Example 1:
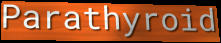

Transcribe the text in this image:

Parathyroid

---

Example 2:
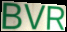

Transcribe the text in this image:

BVR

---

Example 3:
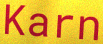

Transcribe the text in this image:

Karn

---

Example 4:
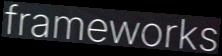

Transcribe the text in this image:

frameworks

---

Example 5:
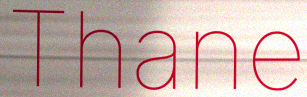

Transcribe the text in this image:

Thane